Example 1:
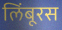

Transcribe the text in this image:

लिंबूरस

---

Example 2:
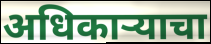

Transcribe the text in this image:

अधिकार्‍याचा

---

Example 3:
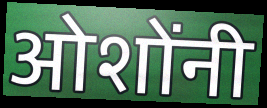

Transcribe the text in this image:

ओशोंनी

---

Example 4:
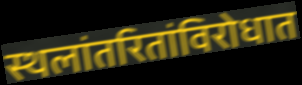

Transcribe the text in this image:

स्थलांतरितांविरोधात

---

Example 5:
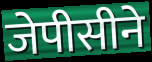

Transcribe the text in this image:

जेपीसीने